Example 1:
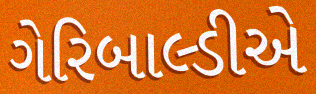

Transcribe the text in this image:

ગેરિબાલ્ડીએ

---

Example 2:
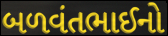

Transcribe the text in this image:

બળવંતભાઈનો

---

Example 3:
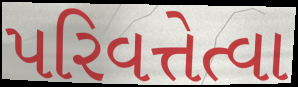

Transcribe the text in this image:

પરિવત્તેત્વા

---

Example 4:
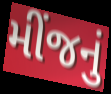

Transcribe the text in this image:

મીંજનું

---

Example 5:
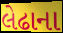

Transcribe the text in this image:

લેઢાના